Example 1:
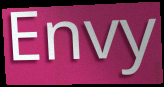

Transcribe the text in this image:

Envy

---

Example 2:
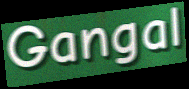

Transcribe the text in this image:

Gangal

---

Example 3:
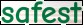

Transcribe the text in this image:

safest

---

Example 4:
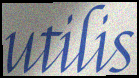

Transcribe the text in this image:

utilis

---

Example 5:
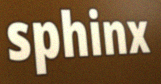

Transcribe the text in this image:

sphinx